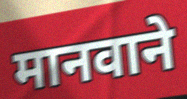
मानवाने